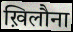
ख़िलौना